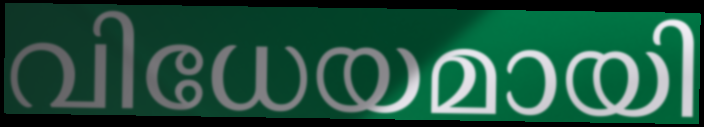
വിധേയമായി